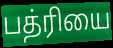
பத்ரியை